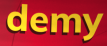
demy